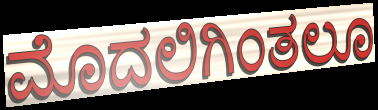
ಮೊದಲಿಗಿಂತಲೂ